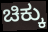
ಚಿಕ್ಕು